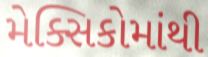
મેક્સિકોમાંથી